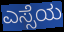
ಎಸ್ಸೆಯ